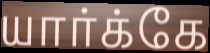
யார்க்கே